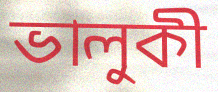
ভালুকী